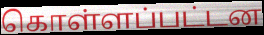
கொள்ளப்பட்டன